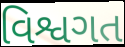
વિશ્વગત